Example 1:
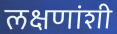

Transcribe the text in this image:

लक्षणांशी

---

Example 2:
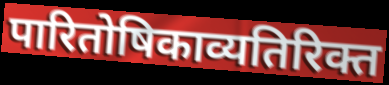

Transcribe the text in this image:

पारितोषिकाव्यतिरिक्त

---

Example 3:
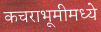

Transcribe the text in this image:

कचराभूमीमध्ये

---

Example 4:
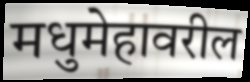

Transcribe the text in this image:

मधुमेहावरील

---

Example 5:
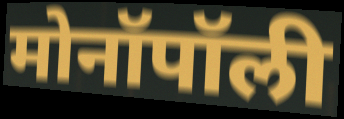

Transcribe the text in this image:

मोनॉपॉली